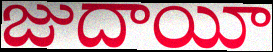
జుదాయీ